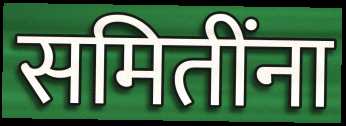
समितींना